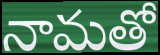
నామతో